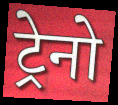
ट्रेनो